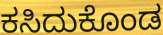
ಕಸಿದುಕೊಂಡ